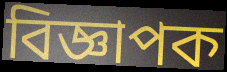
বিজ্ঞাপক